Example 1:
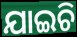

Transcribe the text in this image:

ଯାଇଚି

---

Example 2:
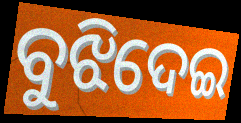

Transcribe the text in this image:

ବୁଝିଦେଇ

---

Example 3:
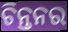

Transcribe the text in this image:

ଚିନ୍ତନର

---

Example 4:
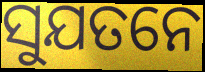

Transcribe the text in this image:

ସୁଯତନେ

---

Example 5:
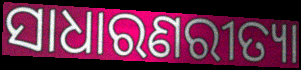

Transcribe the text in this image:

ସାଧାରଣରୀତ୍ୟା